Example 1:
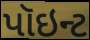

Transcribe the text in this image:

પૉઇન્ટ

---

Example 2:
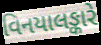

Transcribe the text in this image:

વિનયાલઙ્કારે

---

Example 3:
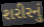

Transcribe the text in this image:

શરીરનું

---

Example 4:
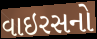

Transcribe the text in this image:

વાઇરસનો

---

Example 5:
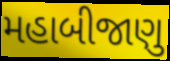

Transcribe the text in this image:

મહાબીજાણુ